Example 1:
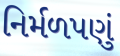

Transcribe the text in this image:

નિર્મળપણું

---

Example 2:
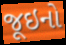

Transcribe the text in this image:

જૂઇનો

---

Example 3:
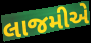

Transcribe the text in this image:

લાજમીએ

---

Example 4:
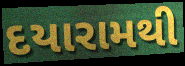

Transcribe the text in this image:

દયારામથી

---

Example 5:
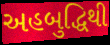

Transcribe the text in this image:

અહબુદ્ધિથી